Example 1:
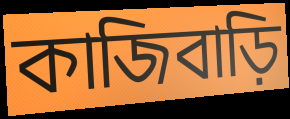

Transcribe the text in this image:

কাজিবাড়ি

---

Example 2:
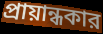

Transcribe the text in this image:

প্রায়ান্ধকার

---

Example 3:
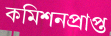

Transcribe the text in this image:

কমিশনপ্রাপ্ত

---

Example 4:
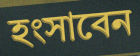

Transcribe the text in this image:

হংসাবেন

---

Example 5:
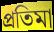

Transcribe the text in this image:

প্রতিমা